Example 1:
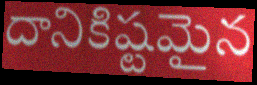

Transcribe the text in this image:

దానికిష్టమైన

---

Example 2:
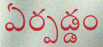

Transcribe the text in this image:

ఏర్పడ్డం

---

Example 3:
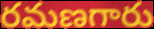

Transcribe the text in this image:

రమణగారు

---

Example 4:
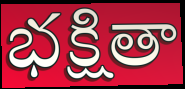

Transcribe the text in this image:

భక్షితా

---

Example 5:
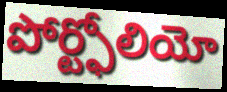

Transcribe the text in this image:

పోర్ట్ఫోలియో